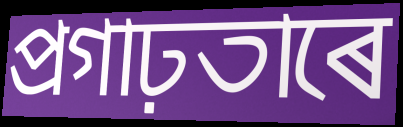
প্ৰগাঢ়তাৰে